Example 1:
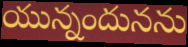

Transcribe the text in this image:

యున్నందునను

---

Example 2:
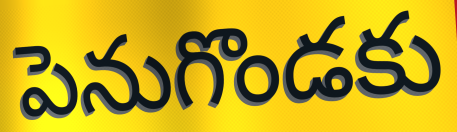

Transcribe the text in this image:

పెనుగొండకు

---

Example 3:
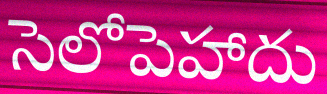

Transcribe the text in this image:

సెలోపెహాదు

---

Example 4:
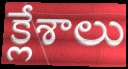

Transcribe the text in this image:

క్లేశాలు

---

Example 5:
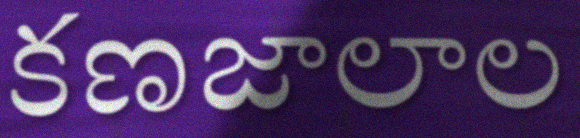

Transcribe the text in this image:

కణజాలాల